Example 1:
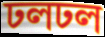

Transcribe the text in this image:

ঢলঢল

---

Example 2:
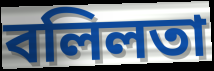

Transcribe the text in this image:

বলিলতা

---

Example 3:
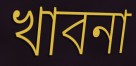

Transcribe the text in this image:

খাবনা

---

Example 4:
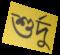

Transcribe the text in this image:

শুর্দু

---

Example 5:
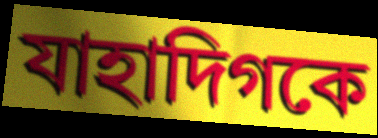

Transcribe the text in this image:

যাহাদিগকে